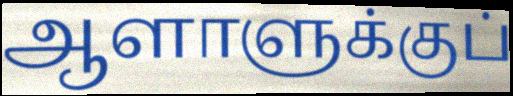
ஆளாளுக்குப்